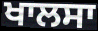
ਖਾਲਸਾ